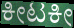
ಕೀಟಕೀ